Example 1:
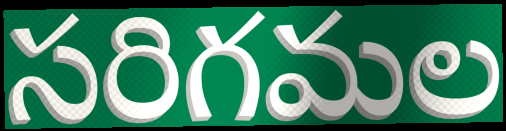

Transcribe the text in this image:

సరిగమల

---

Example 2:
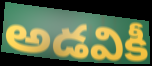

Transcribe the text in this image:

అడవికీ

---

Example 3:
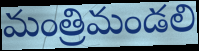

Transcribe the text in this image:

మంత్రిమండలి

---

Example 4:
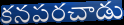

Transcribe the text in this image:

కనపరచాడు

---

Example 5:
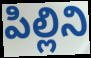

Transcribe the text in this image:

పిల్లిని